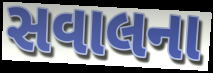
સવાલના